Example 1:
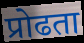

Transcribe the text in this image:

प्रोढता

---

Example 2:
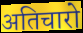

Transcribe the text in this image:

अतिचारो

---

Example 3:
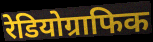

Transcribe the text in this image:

रेडियोग्राफिक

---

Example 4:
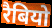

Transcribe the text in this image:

रैबियो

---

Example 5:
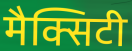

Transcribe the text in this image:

मैक्सिटी